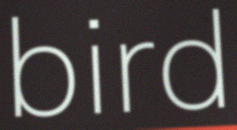
bird